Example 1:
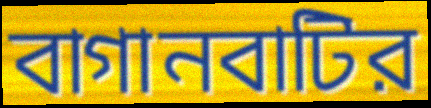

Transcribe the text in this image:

বাগানবাটির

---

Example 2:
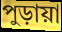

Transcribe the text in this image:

পুড়ায়া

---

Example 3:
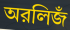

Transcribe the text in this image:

অরলিজঁ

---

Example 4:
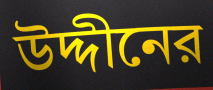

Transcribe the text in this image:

উদ্দীনের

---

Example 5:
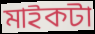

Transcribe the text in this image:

মাইকটা